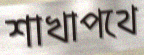
শাখাপথে